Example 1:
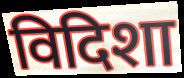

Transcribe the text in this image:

विदिशा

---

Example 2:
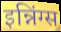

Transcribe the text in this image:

इन्निंग्स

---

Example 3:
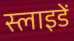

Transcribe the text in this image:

स्लाइडें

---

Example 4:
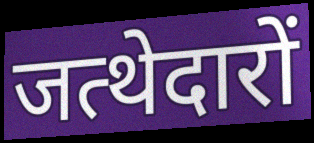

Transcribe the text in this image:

जत्थेदारों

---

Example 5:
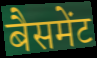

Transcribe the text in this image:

बैसमेंट